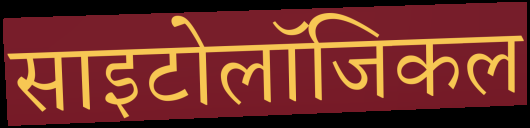
साइटोलॉजिकल